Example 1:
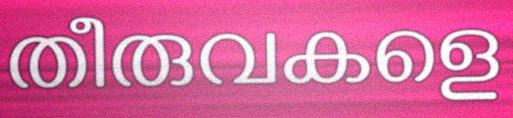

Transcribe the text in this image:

തീരുവകളെ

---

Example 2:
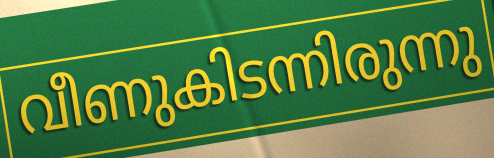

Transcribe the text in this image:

വീണുകിടന്നിരുന്നു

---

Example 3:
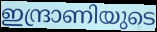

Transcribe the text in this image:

ഇന്ദ്രാണിയുടെ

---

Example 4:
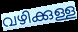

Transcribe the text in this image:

വഴിക്കുള്ള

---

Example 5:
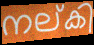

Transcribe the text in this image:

നല്കി